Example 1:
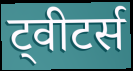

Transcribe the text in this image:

ट्वीटर्स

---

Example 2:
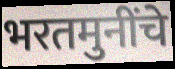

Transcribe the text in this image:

भरतमुनींचे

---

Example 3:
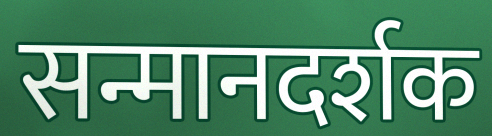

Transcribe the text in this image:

सन्मानदर्शक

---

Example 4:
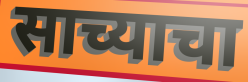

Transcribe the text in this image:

साच्याचा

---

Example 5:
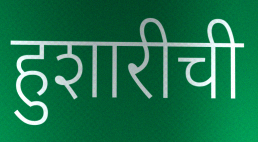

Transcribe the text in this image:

हुशारीची